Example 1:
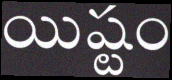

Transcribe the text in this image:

యిష్టం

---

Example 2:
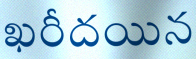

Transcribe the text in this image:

ఖరీదయిన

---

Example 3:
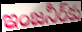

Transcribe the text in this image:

ఇంజనీర్‌కు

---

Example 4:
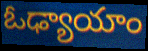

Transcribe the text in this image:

ఓఢ్యాయాం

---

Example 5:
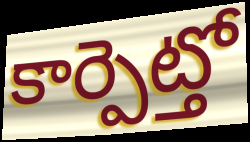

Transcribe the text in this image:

కార్పెట్తో